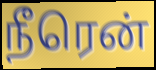
நீரென்